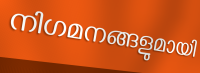
നിഗമനങ്ങളുമായി